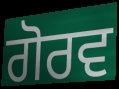
ਗੋਰਵ